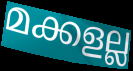
മക്കളല്ല